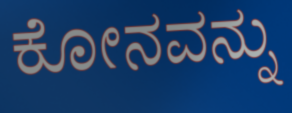
ಕೋನವನ್ನು